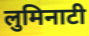
लुमिनाटी